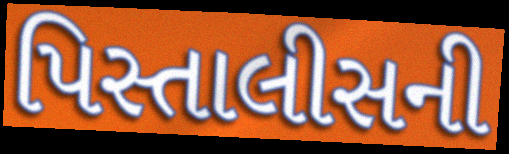
પિસ્તાલીસની